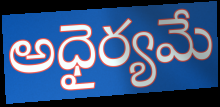
అధైర్యమే